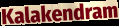
Kalakendram